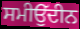
ਸਮੀਉੱਦੀਨ